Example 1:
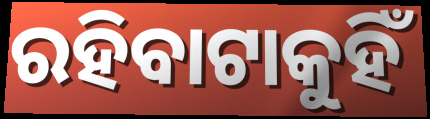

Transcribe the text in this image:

ରହିବାଟାକୁହିଁ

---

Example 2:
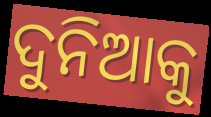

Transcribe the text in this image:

ଦୁନିଆକୁ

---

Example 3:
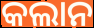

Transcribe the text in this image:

କଲାନ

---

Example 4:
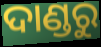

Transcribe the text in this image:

ଦାଣ୍ଡରୁ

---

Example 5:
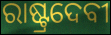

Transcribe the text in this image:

ରାଷ୍ଟ୍ରଦେବୀ